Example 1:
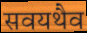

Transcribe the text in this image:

सवयथैव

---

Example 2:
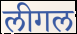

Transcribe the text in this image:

लीगल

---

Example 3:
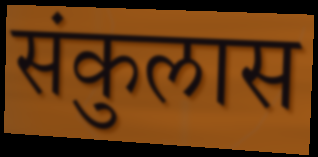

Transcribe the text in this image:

संकुलास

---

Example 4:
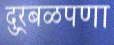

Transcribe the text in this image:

दुर्बळपणा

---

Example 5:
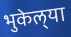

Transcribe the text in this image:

भुकेल्या